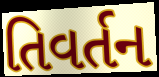
તિવર્તન